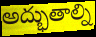
అద్భుతాల్ని